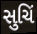
સુચિં